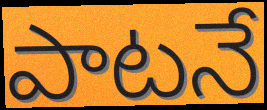
పాటనే